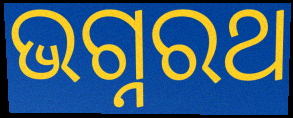
ଭଗ୍ନରଥ